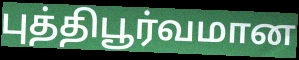
புத்திபூர்வமான